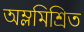
অম্লমিশ্রিত